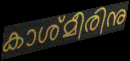
കാശ്മീരിനു